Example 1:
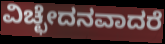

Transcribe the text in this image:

ವಿಚ್ಛೇದನವಾದರೆ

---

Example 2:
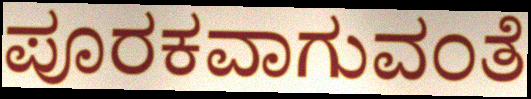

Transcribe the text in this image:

ಪೂರಕವಾಗುವಂತೆ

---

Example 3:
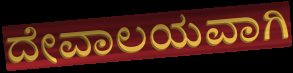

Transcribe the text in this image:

ದೇವಾಲಯವಾಗಿ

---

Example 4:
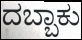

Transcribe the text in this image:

ದಬ್ಬಾಕು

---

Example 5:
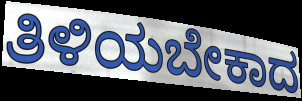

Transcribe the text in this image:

ತಿಳಿಯಬೇಕಾದ